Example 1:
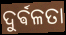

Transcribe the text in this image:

ଦୁର୍ଵଳତା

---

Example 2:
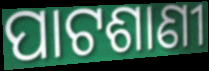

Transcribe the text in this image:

ପାଟଶାଣୀ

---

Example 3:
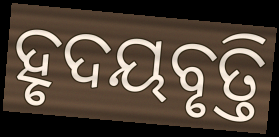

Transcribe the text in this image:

ହୃଦୟବୃତ୍ତି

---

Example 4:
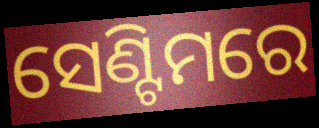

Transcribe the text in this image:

ସେଣ୍ଟିମରେ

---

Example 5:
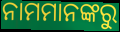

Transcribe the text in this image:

ନାମମାନଙ୍କରୁ